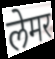
लेमर